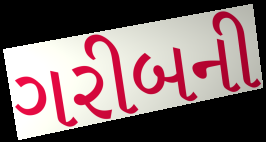
ગરીબની